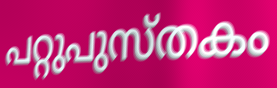
പറ്റുപുസ്തകം